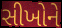
સીખોને